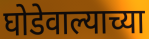
घोडेवाल्याच्या